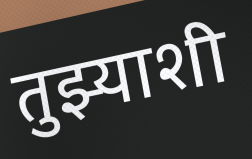
तुझ्याशी